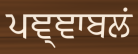
ਪਞ੍ਞਾਬਲਂ